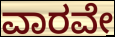
ವಾರವೇ